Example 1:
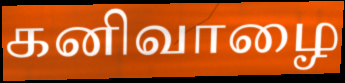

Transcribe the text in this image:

கனிவாழை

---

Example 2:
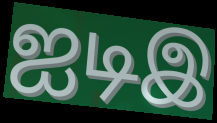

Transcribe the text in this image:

ஐடிஇ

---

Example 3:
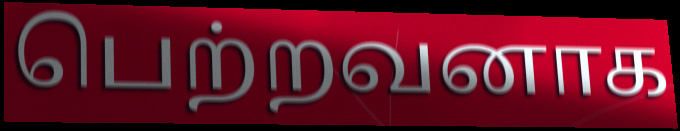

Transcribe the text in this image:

பெற்றவனாக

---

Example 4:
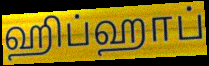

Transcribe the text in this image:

ஹிப்ஹாப்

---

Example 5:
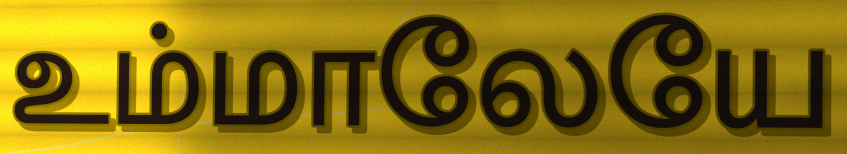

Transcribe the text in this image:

உம்மாலேயே